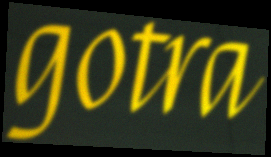
gotra